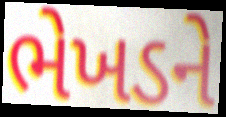
ભેખડને